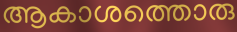
ആകാശത്തൊരു